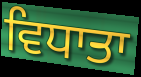
ਵਿਧਾਤਾ